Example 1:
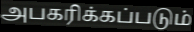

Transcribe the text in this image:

அபகரிக்கப்படும்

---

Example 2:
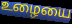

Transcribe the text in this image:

உழையை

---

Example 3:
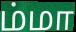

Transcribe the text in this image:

ம்மா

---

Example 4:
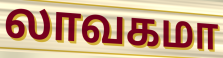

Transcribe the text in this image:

லாவகமா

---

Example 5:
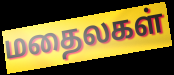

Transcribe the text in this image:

மதைலகள்